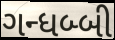
ગન્ધબ્બી